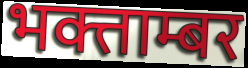
भक्ताम्बर